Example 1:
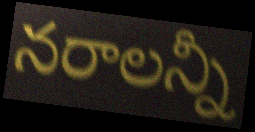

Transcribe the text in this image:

నరాలన్నీ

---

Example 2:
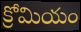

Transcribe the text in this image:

క్రోమియం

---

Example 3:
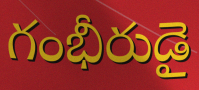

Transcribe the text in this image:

గంభీరుడై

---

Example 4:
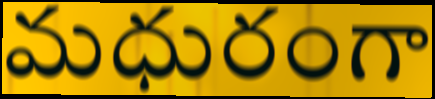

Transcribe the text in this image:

మధురంగా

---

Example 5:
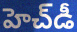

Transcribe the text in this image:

హెచ్‌డీ